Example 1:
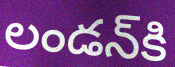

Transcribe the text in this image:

లండన్‌కి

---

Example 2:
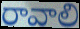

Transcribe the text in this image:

రావాలి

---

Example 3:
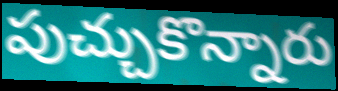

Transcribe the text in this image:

పుచ్చుకొన్నారు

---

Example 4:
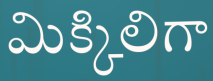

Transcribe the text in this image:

మిక్కిలిగా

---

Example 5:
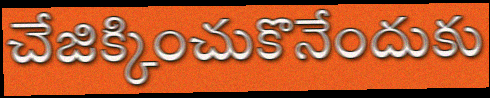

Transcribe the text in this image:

చేజిక్కించుకొనేందుకు